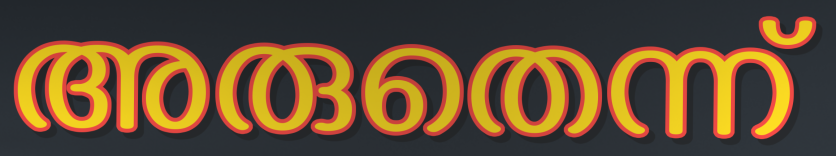
അരുതെന്ന്